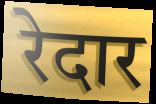
रेदार